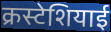
क्रस्टेशियाई